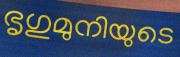
ഭൃഗുമുനിയുടെ